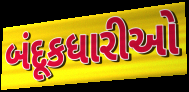
બંદૂકધારીઓ